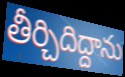
తీర్చిదిద్దాను